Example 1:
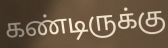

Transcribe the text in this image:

கண்டிருக்கு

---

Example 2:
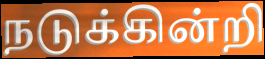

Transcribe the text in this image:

நடுக்கின்றி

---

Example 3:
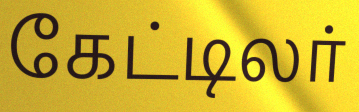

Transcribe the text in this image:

கேட்டிலர்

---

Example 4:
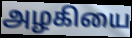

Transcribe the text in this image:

அழகியை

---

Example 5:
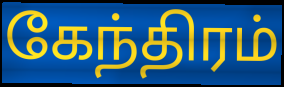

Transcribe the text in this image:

கேந்திரம்